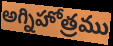
అగ్నిహోత్రము